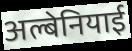
अल्बेनियाई